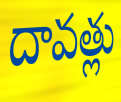
దావత్లు